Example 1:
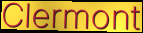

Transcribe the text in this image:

Clermont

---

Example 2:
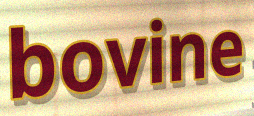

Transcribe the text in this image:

bovine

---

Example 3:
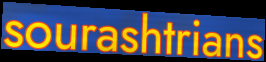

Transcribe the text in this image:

sourashtrians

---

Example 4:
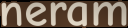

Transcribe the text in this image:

neram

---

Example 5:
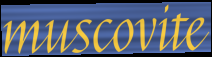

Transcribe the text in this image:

muscovite